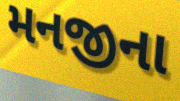
મનજીના